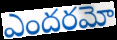
ఎందరమో